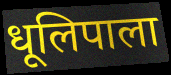
धूलिपाला